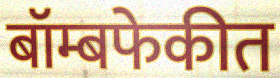
बॉम्बफेकीत